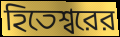
হিতেশ্বরের